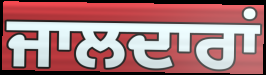
ਜਾਲਦਾਰਾਂ